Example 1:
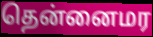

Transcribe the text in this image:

தென்னைமர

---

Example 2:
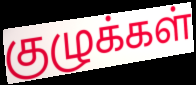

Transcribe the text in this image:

குழுக்கள்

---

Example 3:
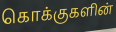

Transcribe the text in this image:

கொக்குகளின்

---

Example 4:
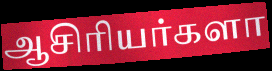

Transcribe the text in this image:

ஆசிரியர்களா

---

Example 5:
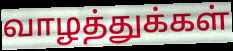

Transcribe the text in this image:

வாழத்துக்கள்